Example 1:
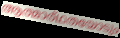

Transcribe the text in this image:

ആത്മാര്ഥതയോടും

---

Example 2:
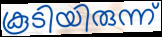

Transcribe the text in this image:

കൂടിയിരുന്ന്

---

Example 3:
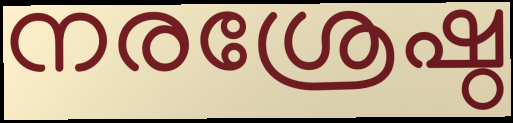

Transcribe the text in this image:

നരശ്രേഷ്ഠ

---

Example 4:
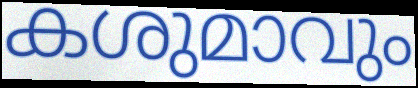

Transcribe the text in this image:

കശുമാവും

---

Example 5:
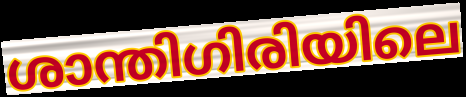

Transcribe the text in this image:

ശാന്തിഗിരിയിലെ